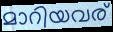
മാറിയവര്